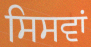
ਸਿਸਵਾਂ